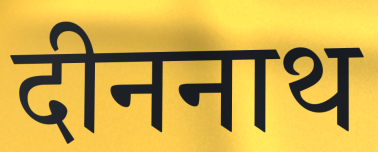
दीननाथ